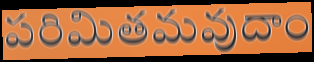
పరిమితమవుదాం